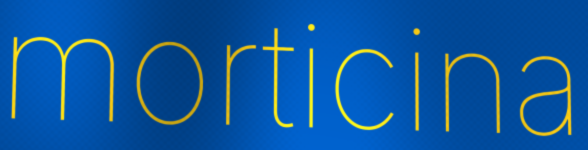
morticina